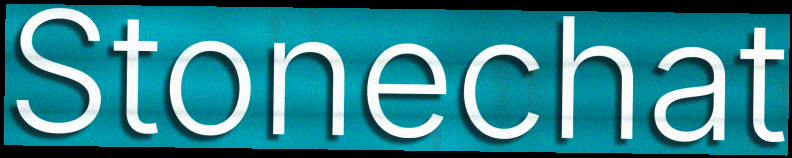
Stonechat